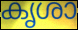
കൃശാ